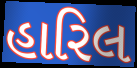
હારિલ